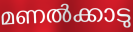
മണൽക്കാടു